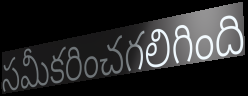
సమీకరించగలిగింది